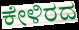
ಕೇಳಿರದ